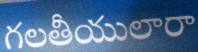
గలతీయులారా